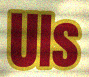
UIs